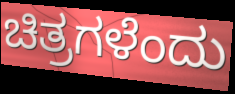
ಚಿತ್ರಗಳೆಂದು